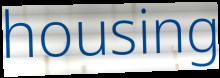
housing